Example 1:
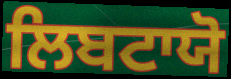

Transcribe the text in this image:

ਲਿਬਟਾਯੋ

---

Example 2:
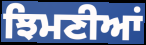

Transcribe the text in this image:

ਝਿਮਣੀਆਂ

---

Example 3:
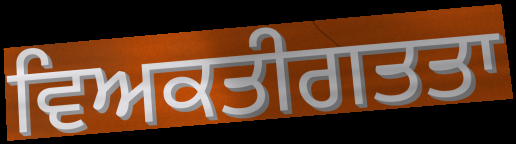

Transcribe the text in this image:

ਵਿਅਕਤੀਗਤਤਾ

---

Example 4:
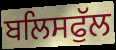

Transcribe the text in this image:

ਬਲਿਸਫੁੱਲ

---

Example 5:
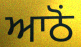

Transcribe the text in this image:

ਆਠੋਂ